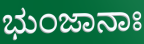
ಭುಂಜಾನಾಃ